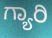
ಗ್ಯಾರಿ